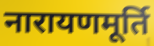
नारायणमूर्ति